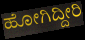
ಹೋಗಿದ್ದೀರಿ